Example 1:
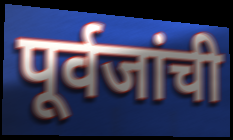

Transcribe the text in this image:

पूर्वजांची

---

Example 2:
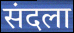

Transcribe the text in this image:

संदला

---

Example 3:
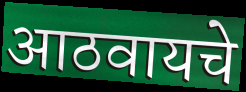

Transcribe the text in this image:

आठवायचे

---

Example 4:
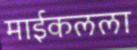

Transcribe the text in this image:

माईकलला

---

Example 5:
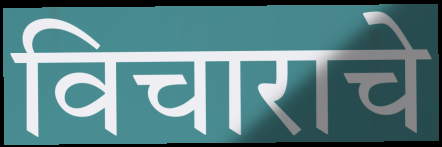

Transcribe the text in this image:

विचाराचे